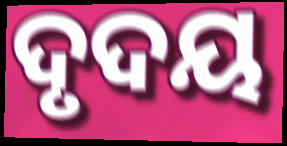
ଦୃଦୟ